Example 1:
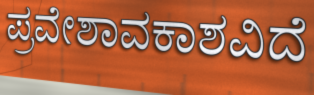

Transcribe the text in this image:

ಪ್ರವೇಶಾವಕಾಶವಿದೆ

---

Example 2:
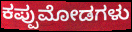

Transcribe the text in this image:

ಕಪ್ಪುಮೋಡಗಳು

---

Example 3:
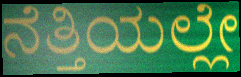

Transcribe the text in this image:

ನೆತ್ತಿಯಲ್ಲೇ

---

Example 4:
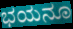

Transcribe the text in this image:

ಭಯನೂ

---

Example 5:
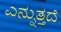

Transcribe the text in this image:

ಎನ್ನುತ್ತದೆ